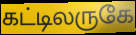
கட்டிலருகே